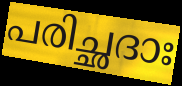
പരിച്ഛദാഃ